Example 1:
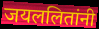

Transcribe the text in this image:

जयललितांनी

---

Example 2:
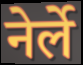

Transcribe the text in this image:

नेर्ले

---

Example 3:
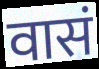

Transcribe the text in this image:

वासं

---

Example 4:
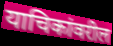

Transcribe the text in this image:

याचिकांवरील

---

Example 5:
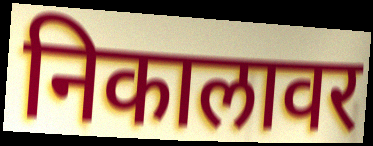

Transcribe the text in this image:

निकालावर